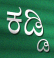
ಕಡ್ಡಿ